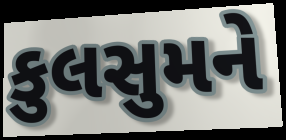
કુલસુમને